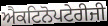
ਐਕਟਿਨੋਪਟੇਰੀਜੀ